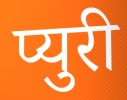
प्युरी